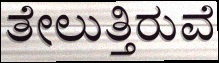
ತೇಲುತ್ತಿರುವೆ